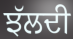
ਝੱਲਦੀ